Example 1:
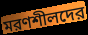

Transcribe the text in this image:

মরণশীলদের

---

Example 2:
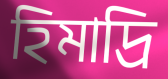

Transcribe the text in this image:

হিমাদ্রি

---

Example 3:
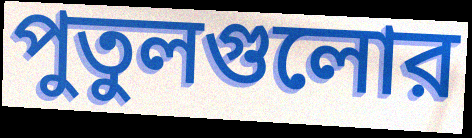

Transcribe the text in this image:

পুতুলগুলোর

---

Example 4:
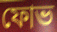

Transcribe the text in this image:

ফোভ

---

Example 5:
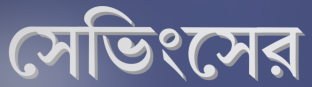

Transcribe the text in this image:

সেভিংসের